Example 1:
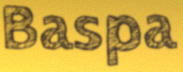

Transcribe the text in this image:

Baspa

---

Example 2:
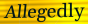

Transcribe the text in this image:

Allegedly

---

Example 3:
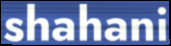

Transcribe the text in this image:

shahani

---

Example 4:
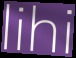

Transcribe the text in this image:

lihi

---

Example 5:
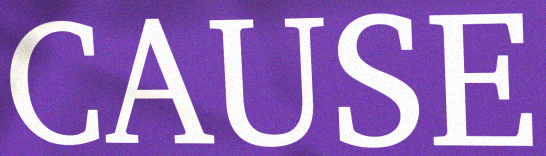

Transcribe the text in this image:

CAUSE